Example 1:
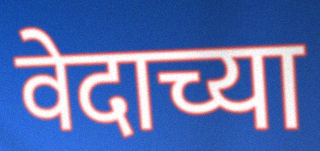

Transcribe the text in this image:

वेदाच्या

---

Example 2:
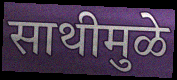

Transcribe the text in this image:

साथीमुळे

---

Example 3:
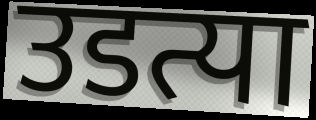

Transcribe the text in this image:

उडत्या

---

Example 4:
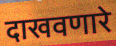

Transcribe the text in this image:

दाखवणारे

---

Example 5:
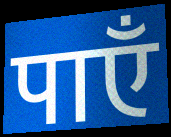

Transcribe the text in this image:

पाएँ